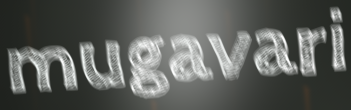
mugavari